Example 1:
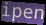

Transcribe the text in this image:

ipen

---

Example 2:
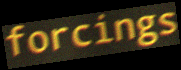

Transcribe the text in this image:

forcings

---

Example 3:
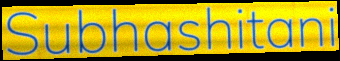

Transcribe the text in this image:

Subhashitani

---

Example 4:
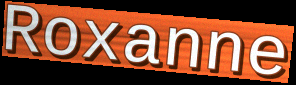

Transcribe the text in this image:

Roxanne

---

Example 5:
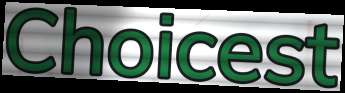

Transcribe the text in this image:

Choicest